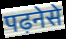
पढ़नेसे